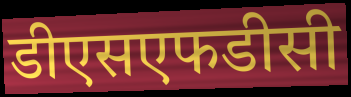
डीएसएफडीसी